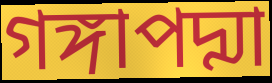
গঙ্গাপদ্মা